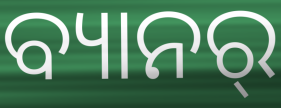
ବ୍ୟାନର୍